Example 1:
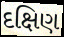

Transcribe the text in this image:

દક્ષિણ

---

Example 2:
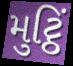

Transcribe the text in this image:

મુટ્ઠિં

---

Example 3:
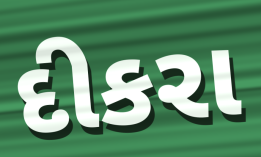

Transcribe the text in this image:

દીકરા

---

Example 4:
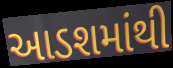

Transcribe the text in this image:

આડશમાંથી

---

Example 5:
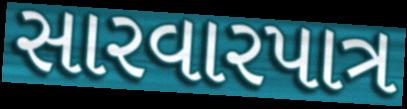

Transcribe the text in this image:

સારવારપાત્ર